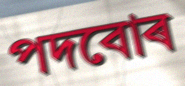
পদবোৰ